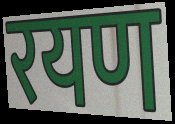
रयण